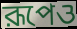
রূপেও